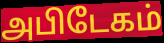
அபிடேகம்